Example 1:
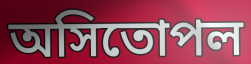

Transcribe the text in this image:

অসিতোপল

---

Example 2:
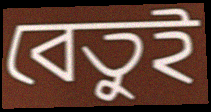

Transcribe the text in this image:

বেতুই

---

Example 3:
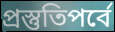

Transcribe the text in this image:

প্রস্তুতিপর্বে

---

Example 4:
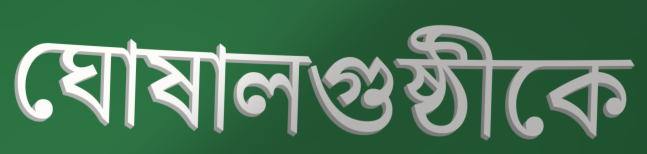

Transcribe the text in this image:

ঘোষালগুষ্ঠীকে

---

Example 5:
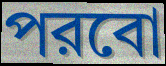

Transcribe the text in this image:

পরবো